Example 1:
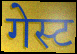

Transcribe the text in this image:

गेस्ट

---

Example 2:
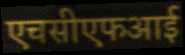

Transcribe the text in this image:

एचसीएफआई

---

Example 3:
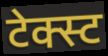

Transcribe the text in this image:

टेक्स्ट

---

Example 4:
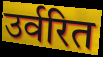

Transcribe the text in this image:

उर्वरित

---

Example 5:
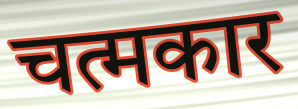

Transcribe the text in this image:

चत्मकार